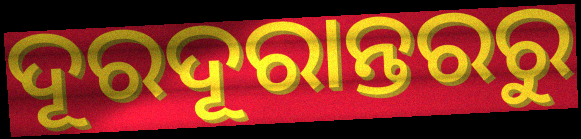
ଦୂରଦୂରାନ୍ତରରୁ